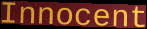
Innocent